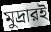
মুদ্রারই